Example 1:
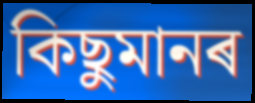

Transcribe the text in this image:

কিছুমানৰ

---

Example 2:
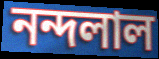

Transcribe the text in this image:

নন্দলাল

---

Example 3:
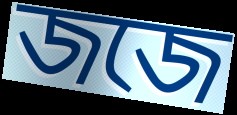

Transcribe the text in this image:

জজে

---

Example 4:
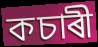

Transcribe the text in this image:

কচাৰী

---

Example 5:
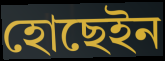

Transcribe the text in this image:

হোছেইন